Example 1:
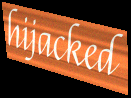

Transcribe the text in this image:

hijacked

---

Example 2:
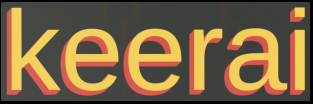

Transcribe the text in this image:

keerai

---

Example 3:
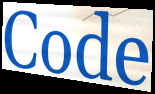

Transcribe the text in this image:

Code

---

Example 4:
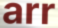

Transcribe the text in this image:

arr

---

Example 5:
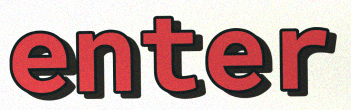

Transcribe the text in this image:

enter